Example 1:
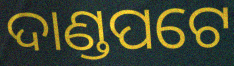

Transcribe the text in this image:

ଦାଣ୍ଡପଟେ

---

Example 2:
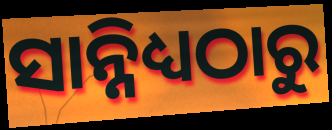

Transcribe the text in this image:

ସାନ୍ନିଧ୍ୟଠାରୁ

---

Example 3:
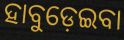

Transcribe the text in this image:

ହାବୁଡ଼େଇବା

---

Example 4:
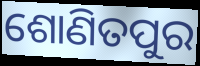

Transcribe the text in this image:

ଶୋଣିତପୁର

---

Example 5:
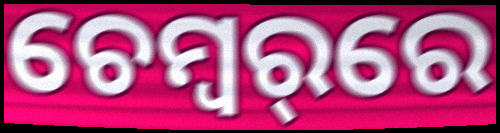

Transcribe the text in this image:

ଚେମ୍ବର୍‌ରେ